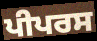
ਪੀਪਰਸ